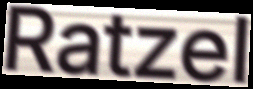
Ratzel